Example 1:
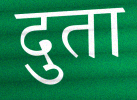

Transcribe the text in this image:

दुता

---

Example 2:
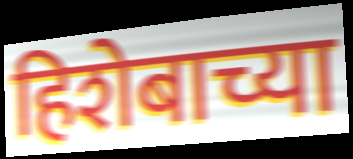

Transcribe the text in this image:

हिशेबाच्या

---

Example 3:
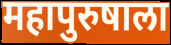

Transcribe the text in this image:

महापुरुषाला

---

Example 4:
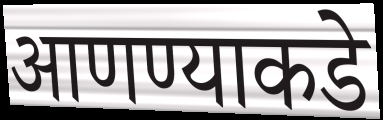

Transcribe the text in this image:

आणण्याकडे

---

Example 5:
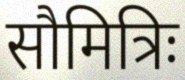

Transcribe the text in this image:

सौमित्रिः